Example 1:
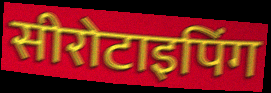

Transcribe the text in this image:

सीरोटाइपिंग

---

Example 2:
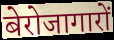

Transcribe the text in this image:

बेरोजागारों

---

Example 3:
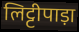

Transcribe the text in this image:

लिट्टीपाड़ा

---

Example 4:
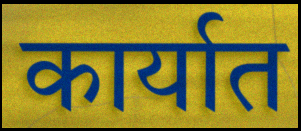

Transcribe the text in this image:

कार्यात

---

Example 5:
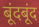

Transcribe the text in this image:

बूंदबूंद